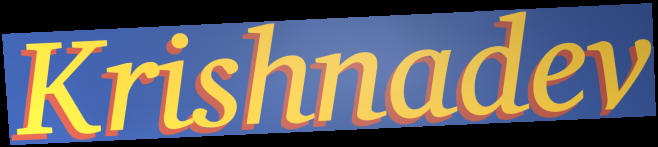
Krishnadev